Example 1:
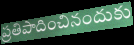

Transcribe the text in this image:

ప్రతిపాదించినందుకు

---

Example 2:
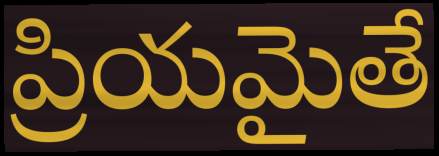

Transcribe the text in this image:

ప్రియమైతే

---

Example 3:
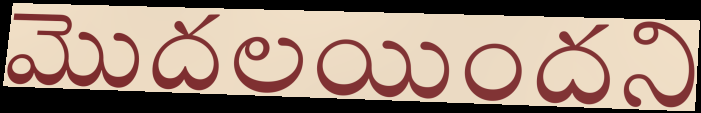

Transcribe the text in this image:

మొదలయిందని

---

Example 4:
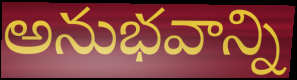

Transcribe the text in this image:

అనుభవాన్ని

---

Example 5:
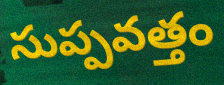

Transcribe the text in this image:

సుప్పవత్తం